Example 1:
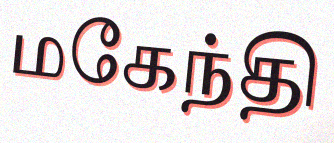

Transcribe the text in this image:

மகேந்தி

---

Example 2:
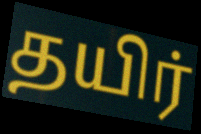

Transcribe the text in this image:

தயிர்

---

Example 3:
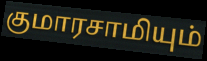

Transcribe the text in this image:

குமாரசாமியும்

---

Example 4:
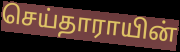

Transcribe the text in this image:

செய்தாராயின்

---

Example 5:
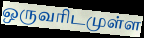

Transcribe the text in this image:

ஒருவரிடமுள்ள